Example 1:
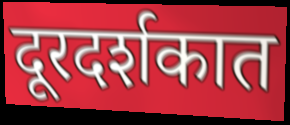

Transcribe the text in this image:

दूरदर्शकात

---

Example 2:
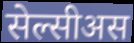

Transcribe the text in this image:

सेल्सीअस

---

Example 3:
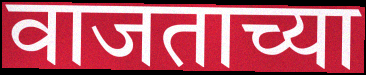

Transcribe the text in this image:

वाजताच्या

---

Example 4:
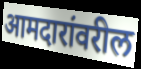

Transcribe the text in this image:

आमदारांवरील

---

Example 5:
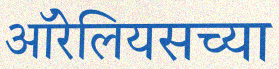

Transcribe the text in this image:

ऑरेलियसच्या